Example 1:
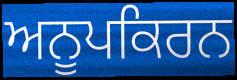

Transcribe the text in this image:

ਅਨੂਪਕਿਰਨ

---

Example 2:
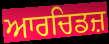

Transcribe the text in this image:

ਆਰਚਿਡਜ਼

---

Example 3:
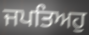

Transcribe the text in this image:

ਜਪਤਿਅਹੁ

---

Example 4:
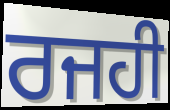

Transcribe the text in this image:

ਰਜਹੀ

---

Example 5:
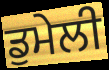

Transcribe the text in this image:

ਡੁਮੇਲੀ